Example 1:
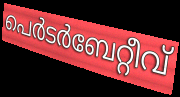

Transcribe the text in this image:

പെർടർബേറ്റീവ്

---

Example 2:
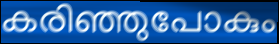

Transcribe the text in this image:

കരിഞ്ഞുപോകും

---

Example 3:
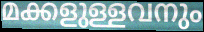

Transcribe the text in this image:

മക്കളുള്ളവനും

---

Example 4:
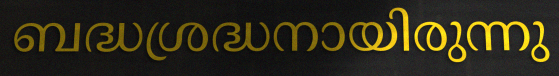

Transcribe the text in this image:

ബദ്ധശ്രദ്ധനായിരുന്നു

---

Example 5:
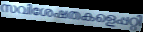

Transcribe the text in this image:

സവിശേഷതകളെപ്പറ്റി